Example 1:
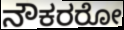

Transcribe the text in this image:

ನೌಕರರೋ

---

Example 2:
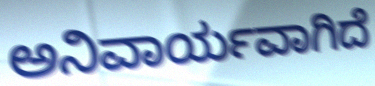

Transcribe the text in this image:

ಅನಿವಾರ್ಯವಾಗಿದೆ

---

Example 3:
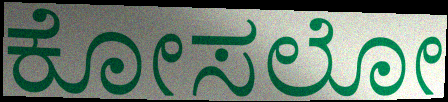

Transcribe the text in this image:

ಕೋಸಲೋ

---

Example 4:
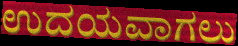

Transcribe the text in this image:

ಉದಯವಾಗಲು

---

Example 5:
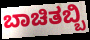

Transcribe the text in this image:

ಬಾಚಿತಬ್ಬಿ